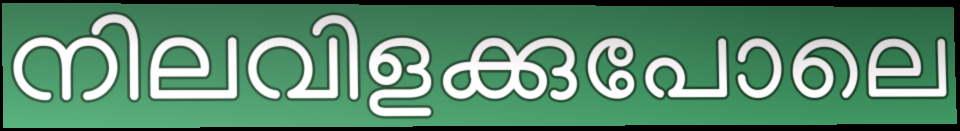
നിലവിളക്കുപോലെ